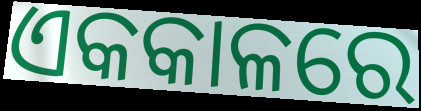
ଏକକାଳରେ